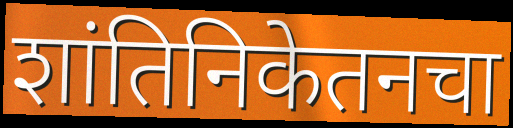
शांतिनिकेतनचा